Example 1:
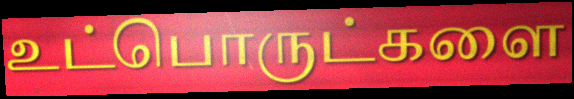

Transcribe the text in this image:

உட்பொருட்களை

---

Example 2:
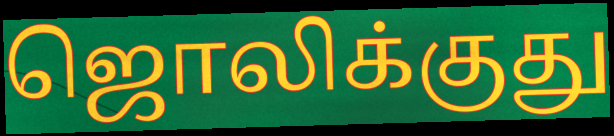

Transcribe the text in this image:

ஜொலிக்குது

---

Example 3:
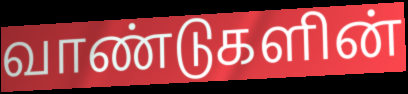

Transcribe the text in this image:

வாண்டுகளின்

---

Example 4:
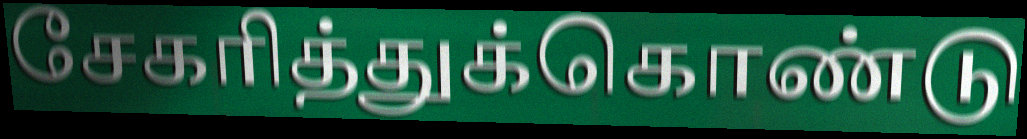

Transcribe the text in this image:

சேகரித்துக்கொண்டு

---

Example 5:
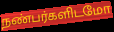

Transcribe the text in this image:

நண்பர்களிடமோ